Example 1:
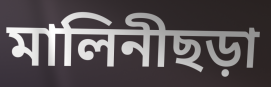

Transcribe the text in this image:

মালিনীছড়া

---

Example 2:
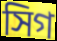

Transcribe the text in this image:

সিগ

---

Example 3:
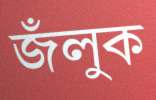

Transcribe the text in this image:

জঁলুক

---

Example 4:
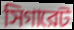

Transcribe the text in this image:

সিগারেট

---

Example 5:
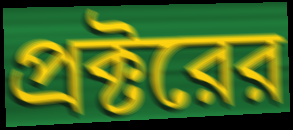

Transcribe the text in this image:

প্রক্টরের